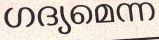
ഗദ്യമെന്ന